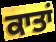
ਕਾਤਾਂ